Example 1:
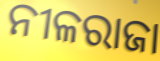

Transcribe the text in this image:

ନୀଳରାଜା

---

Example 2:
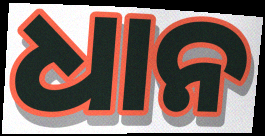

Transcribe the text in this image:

ଧାନ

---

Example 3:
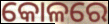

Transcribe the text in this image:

କୋଳରେ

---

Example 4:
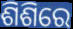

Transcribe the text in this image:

ଶିଶିରେ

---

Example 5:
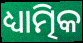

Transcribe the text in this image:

ଧ୍ୟାତ୍ମିକ